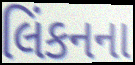
લિંકનના